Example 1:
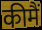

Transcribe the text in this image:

कीमैं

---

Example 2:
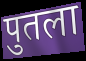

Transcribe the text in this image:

पुतला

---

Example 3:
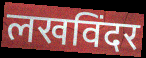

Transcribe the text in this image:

लखविंदर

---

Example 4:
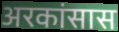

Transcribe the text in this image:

अरकांसास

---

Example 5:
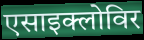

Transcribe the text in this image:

एसाइक्लोविर